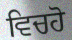
ਵਿਚਹੋ